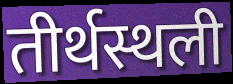
तीर्थस्थली